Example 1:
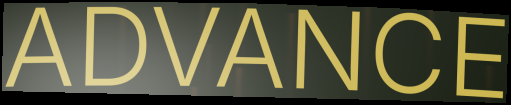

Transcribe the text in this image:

ADVANCE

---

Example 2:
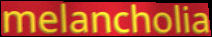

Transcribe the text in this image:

melancholia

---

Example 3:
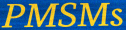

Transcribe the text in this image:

PMSMs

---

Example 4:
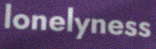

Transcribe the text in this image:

lonelyness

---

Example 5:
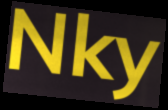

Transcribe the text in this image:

Nky